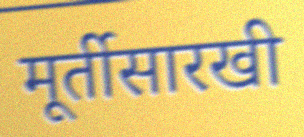
मूर्तीसारखी